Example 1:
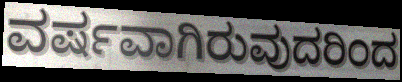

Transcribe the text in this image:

ವರ್ಷವಾಗಿರುವುದರಿಂದ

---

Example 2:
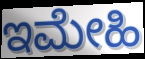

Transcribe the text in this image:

ಇಮೇಹಿ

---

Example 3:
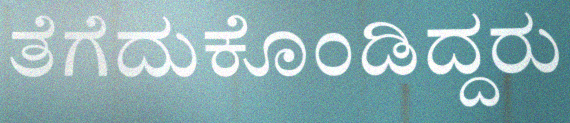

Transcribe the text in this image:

ತೆಗೆದುಕೊಂಡಿದ್ದರು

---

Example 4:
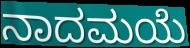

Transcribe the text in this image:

ನಾದಮಯೆ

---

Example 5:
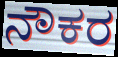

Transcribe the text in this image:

ನೌಕರ